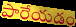
పారేయడం